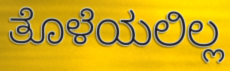
ತೊಳೆಯಲಿಲ್ಲ